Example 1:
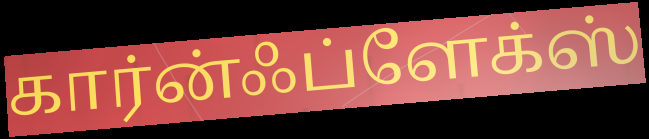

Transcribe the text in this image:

கார்ன்ஃப்ளேக்ஸ்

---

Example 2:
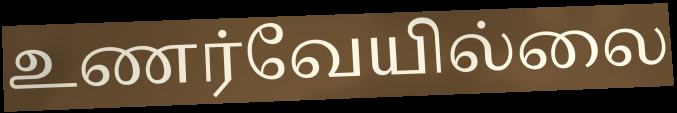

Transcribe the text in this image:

உணர்வேயில்லை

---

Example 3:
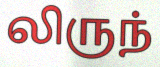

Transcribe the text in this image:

லிருந்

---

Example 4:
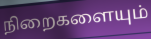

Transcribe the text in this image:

நிறைகளையும்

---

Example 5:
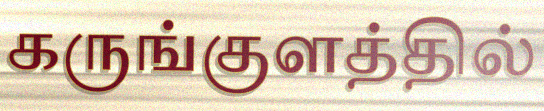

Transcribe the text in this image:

கருங்குளத்தில்